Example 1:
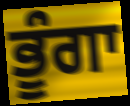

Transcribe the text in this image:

ਭੂੰਗਾ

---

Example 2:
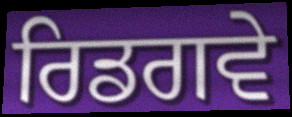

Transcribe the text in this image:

ਰਿਡਗਵੇ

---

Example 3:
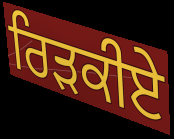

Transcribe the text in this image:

ਰਿੜਕੀਏ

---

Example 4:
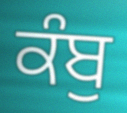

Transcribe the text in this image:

ਕੰਬੁ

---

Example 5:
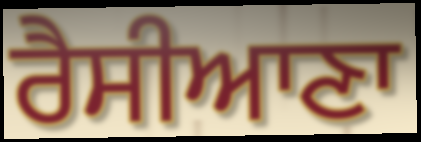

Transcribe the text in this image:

ਰੈਸੀਆਣਾ